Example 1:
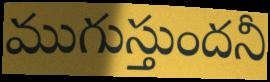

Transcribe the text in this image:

ముగుస్తుందనీ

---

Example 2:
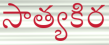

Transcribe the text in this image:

సాత్యకిర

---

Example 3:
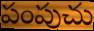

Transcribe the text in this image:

పంపుచు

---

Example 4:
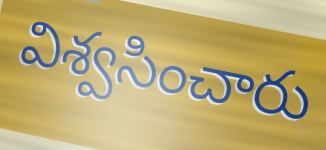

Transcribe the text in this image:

విశ్వసించారు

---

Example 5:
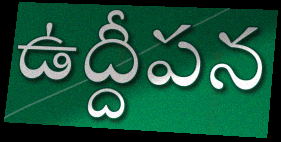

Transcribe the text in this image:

ఉద్దీపన